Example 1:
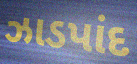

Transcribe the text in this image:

ઝાડપાંદ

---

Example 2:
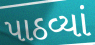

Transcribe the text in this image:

પાઠવ્યાં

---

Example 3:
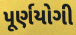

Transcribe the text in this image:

પૂર્ણયોગી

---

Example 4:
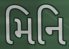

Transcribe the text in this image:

મિનિ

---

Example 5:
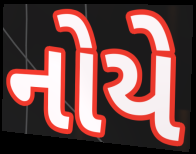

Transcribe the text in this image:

નોયે